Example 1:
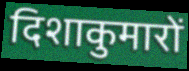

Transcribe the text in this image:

दिशाकुमारों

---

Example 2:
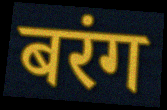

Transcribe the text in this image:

बरंग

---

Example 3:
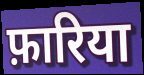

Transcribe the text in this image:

फ़ारिया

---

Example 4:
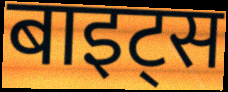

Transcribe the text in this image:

बाइट्स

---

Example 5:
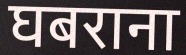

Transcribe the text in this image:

घबराना